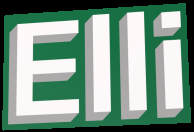
Elli